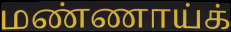
மண்ணாய்க்